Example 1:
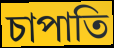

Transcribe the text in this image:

চাপাতি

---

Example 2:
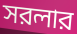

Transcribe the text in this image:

সরলার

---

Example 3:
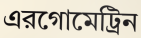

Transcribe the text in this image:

এরগোমেট্রিন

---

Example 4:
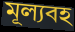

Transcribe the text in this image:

মূল্যবহ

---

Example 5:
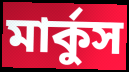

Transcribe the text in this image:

মার্কুস